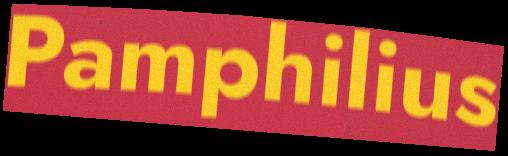
Pamphilius